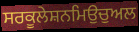
ਸਰਕੂਲੇਸ਼ਨਮਿਉਚੁਅਲ